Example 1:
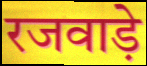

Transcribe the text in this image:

रजवाड़े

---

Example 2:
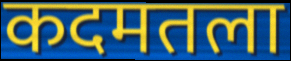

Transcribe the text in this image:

कदमतला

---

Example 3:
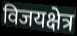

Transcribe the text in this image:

विजयक्षेत्र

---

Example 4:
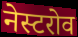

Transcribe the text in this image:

नेस्टरोव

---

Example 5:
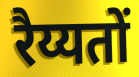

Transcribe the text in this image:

रैय्यतों